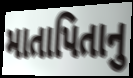
માતાપિતાનુ